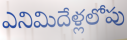
ఎనిమిదేళ్లలోపు